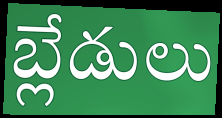
బ్లేడులు